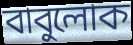
বাবুলোক